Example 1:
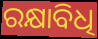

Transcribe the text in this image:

ରକ୍ଷାବିଧି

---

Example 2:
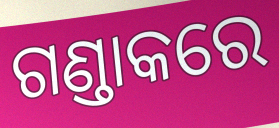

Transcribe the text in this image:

ଗଣ୍ଡାକରେ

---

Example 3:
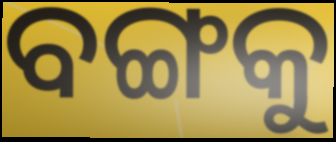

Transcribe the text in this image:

ବଙ୍ଗକୁ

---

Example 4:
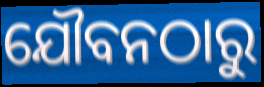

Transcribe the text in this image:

ଯୌବନଠାରୁ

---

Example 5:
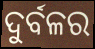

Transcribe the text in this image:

ଦୁର୍ବଳର